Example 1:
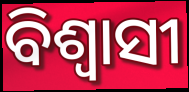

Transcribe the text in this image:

ବିଶ୍ୱାସୀ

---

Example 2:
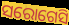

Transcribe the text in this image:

ସରୋଗେସି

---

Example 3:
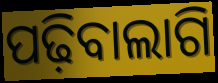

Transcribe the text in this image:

ପଢ଼ିବାଲାଗି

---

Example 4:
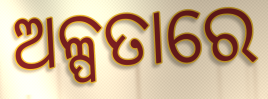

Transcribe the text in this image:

ଅଳ୍ପତାରେ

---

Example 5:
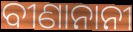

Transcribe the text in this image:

ବୀଣାନାନୀ